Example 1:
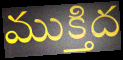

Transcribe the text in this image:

ముక్తిద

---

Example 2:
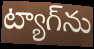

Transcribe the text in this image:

ట్యాగ్‌ను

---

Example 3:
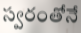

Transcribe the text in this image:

స్వరంతోనే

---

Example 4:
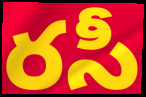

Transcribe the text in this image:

రసీ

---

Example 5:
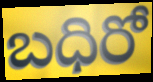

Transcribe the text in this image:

బధిరో